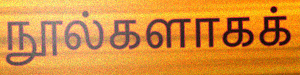
நூல்களாகக்